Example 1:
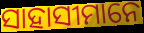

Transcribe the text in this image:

ସାହାସୀମାନେ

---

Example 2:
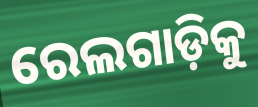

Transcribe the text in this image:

ରେଲଗାଡ଼ିକୁ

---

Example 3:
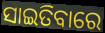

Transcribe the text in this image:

ସାଇତିବାରେ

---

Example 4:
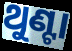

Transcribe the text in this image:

ଥୁଣ୍ଟା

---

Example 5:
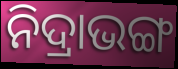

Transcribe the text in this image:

ନିଦ୍ରାଭଙ୍ଗ